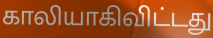
காலியாகிவிட்டது